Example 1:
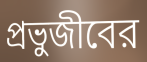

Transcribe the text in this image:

প্রভুজীবের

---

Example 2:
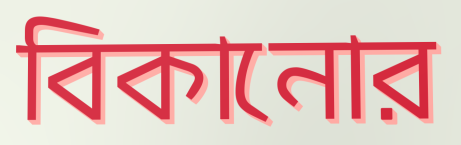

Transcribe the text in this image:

বিকানোর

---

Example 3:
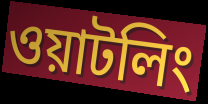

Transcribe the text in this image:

ওয়াটলিং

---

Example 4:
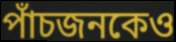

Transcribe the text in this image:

পাঁচজনকেও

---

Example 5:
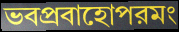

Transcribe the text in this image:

ভবপ্রবাহোপরমং